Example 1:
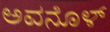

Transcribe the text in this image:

ಅವನೊಳ್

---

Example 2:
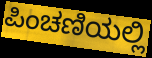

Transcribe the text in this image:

ಪಿಂಚಣಿಯಲ್ಲಿ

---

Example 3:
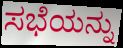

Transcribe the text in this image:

ಸಭೆಯನ್ನು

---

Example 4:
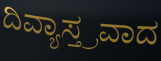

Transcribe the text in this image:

ದಿವ್ಯಾಸ್ತ್ರವಾದ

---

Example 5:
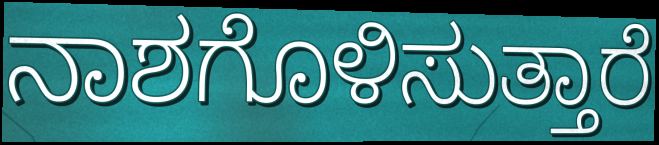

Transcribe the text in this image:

ನಾಶಗೊಳಿಸುತ್ತಾರೆ